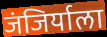
जंजिर्याला